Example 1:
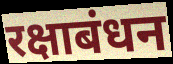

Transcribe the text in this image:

रक्षाबंधन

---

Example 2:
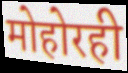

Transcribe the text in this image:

मोहोरही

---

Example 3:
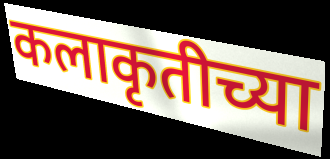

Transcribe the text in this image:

कलाकृतीच्या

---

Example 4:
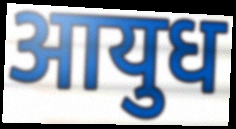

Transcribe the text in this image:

आयुध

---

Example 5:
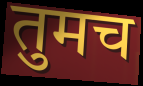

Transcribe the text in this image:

तुमच